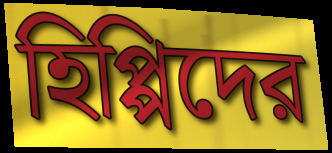
হিপ্পিদের